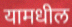
यामधील